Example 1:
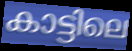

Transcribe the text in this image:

കാട്ടിലെ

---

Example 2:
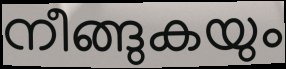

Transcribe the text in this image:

നീങ്ങുകയും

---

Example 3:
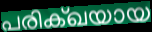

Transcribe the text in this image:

പരിക്ഖയായ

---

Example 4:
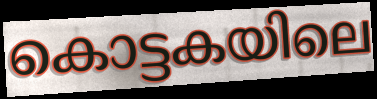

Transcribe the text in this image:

കൊട്ടകയിലെ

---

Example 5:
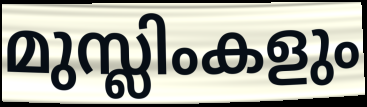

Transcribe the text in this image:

മുസ്ലിംകളും